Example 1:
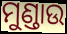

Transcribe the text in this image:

ମୁଣ୍ଡାଉ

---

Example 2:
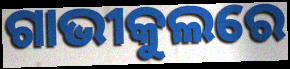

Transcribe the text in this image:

ଗାଭୀକୁଲରେ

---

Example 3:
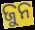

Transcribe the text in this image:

ଜୁନ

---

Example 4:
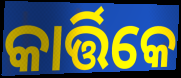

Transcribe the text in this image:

କାର୍ତ୍ତିକେ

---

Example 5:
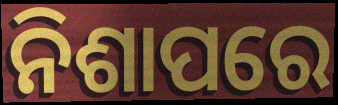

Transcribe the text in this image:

ନିଶାପରେ